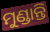
ମୁଣ୍ଡାନ୍ତି